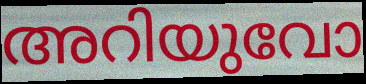
അറിയുവോ